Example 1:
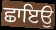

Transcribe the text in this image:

ਛਾਇਉ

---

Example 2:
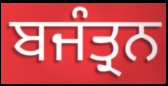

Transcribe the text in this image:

ਬਜੰਤ੍ਰਨ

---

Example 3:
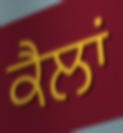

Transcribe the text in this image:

ਕੈਲਾਂ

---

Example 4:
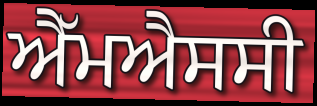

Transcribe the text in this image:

ਐੱਮਐਸਸੀ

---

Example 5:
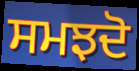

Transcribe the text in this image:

ਸਮਝਦੋ